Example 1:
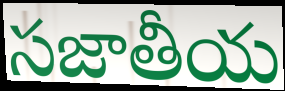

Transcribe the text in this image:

సజాతీయ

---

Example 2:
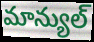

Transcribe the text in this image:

మాన్యుల్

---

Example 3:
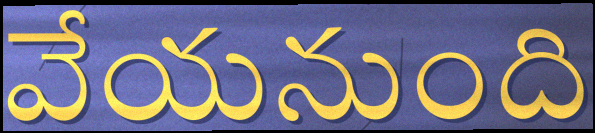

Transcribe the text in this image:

వేయనుంది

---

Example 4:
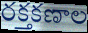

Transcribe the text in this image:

రక్తకణాల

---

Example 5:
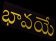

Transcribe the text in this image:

భావయే